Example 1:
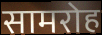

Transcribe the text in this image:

सामरोह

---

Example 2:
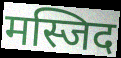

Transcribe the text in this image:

मस्जिद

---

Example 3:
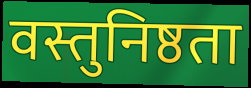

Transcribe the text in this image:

वस्तुनिष्ठता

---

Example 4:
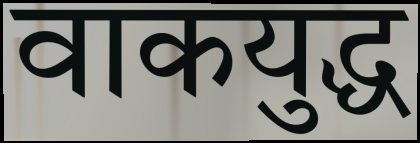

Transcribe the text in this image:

वाकयुद्ध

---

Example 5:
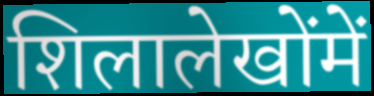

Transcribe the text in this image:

शिलालेखोंमें